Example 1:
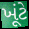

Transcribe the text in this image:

ખૂંટે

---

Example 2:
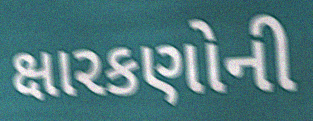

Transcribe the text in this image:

ક્ષારકણોની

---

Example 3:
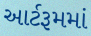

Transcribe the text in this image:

આર્ટરૂમમાં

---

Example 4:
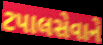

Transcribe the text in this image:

ટપાલસેવાને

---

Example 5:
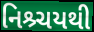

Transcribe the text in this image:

નિશ્ર્ચયથી